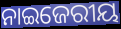
ନାଇଜେରୀୟ